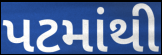
પટમાંથી